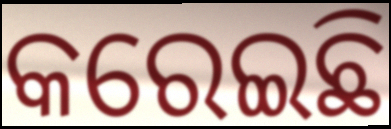
କରେଇଛି